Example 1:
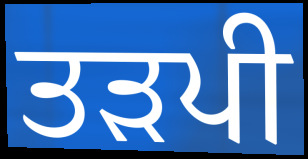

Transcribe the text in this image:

ਤੜਪੀ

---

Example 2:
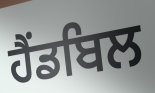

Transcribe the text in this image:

ਹੈਂਡਬਿਲ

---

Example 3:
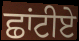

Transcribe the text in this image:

ਛਾਂਟੀਏ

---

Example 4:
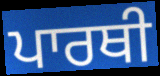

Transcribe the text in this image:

ਪਾਰਥੀ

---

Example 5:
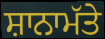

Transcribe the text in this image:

ਸ਼ਾਨਾਮੱਤੇ